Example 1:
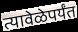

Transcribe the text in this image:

त्यावेळेपर्यंत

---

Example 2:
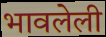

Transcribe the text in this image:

भावलेली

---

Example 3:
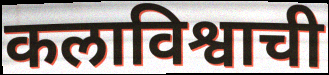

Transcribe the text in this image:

कलाविश्वाची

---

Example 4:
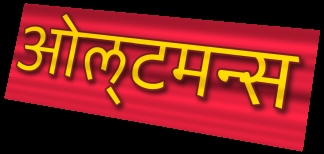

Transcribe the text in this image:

ओल्टमन्स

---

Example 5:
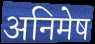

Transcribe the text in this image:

अनिमेष